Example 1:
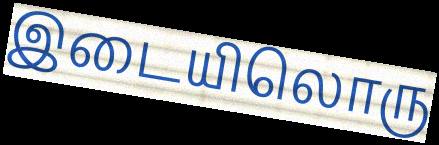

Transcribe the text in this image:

இடையிலொரு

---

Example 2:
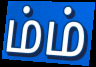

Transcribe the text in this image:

ம்ம்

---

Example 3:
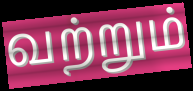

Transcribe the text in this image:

வற்றும்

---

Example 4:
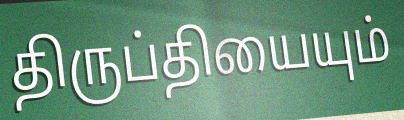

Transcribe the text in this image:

திருப்தியையும்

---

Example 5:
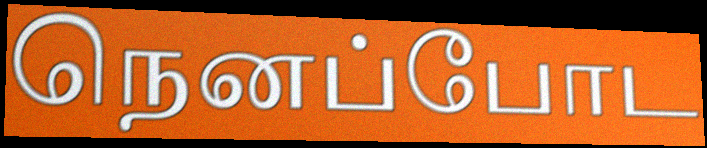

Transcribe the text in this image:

நெனப்போட